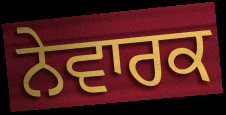
ਨੇਵਾਰਕ